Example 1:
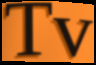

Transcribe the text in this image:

Tv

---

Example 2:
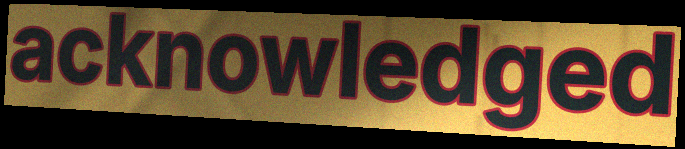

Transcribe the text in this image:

acknowledged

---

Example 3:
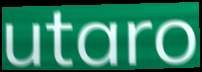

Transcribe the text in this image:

utaro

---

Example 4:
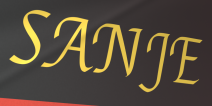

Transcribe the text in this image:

SANJE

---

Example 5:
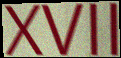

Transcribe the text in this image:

XVII